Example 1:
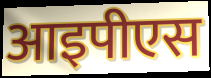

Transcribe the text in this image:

आइपीएस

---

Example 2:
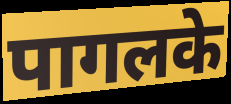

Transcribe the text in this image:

पागलके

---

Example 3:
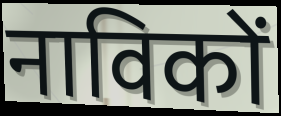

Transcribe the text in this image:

नाविकों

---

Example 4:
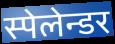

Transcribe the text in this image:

स्पेलेन्डर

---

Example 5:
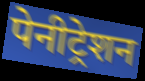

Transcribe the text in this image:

पेनीट्रेशन